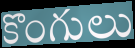
కొంగులు